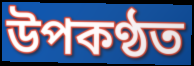
উপকণ্ঠত